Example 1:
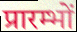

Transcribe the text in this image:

प्रारम्भों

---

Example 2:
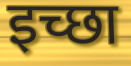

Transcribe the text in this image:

इच्‍छा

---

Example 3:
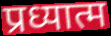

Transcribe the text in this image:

प्रध्यात्म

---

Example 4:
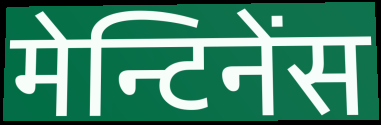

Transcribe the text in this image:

मेन्टिनेंस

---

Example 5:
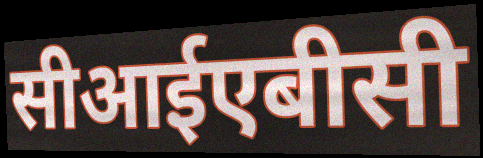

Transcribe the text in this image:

सीआईएबीसी